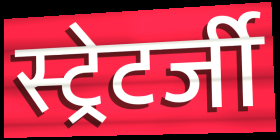
स्ट्रेटर्जी